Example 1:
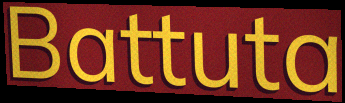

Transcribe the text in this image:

Battuta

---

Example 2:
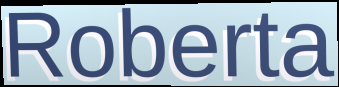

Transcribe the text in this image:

Roberta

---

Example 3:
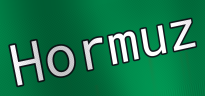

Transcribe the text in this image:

Hormuz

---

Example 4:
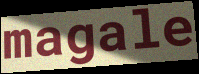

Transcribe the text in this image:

magale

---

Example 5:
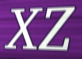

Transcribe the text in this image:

XZ